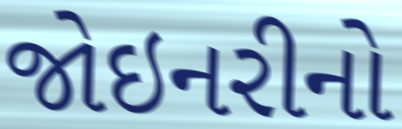
જોઇનરીનો